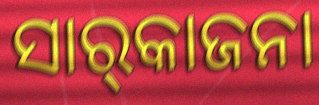
ସାର୍‌କାଜନା